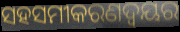
ସହସମୀକରଣଦ୍ୱୟର